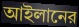
আইলানের